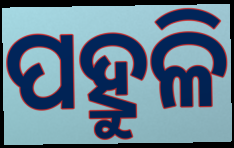
ପହ୍ରୁଳି